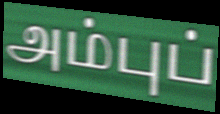
அம்புப்